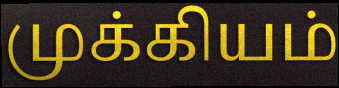
முக்கியம்